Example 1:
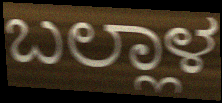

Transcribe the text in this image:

ಬಲ್ಲಾಳ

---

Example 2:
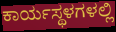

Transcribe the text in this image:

ಕಾರ್ಯಸ್ಥಳಗಳಲ್ಲಿ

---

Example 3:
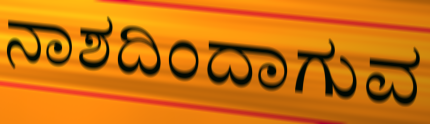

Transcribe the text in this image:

ನಾಶದಿಂದಾಗುವ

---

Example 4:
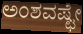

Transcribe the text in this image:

ಅಂಶವಷ್ಟೇ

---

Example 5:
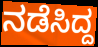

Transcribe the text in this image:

ನಡೆಸಿದ್ದ